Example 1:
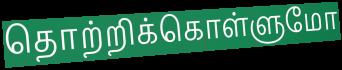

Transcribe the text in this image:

தொற்றிக்கொள்ளுமோ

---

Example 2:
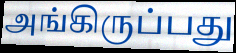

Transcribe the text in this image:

அங்கிருப்பது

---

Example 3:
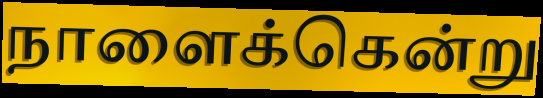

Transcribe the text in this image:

நாளைக்கென்று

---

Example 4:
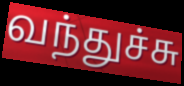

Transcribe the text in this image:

வந்துச்சு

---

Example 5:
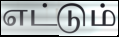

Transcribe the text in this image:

எட்டும்